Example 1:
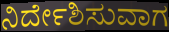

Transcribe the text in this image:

ನಿರ್ದೇಶಿಸುವಾಗ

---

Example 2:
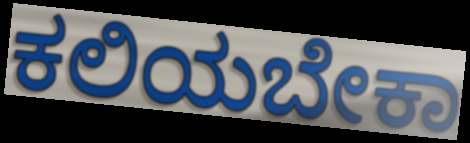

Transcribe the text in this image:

ಕಲಿಯಬೇಕಾ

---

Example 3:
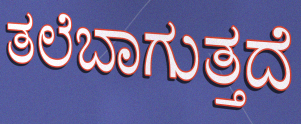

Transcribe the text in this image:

ತಲೆಬಾಗುತ್ತದೆ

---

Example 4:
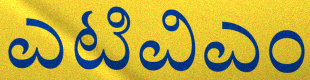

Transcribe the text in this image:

ಎಟಿವಿಎಂ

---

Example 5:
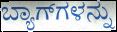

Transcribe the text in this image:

ಬ್ಯಾಗ್‌ಗಳನ್ನು